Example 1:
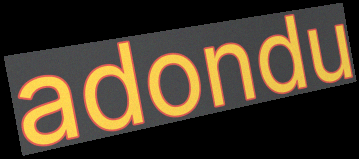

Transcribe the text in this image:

adondu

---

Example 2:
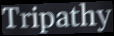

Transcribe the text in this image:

Tripathy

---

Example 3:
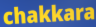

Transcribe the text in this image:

chakkara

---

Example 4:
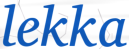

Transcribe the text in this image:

lekka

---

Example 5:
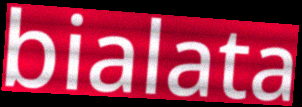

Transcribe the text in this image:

bialata